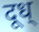
दूध्